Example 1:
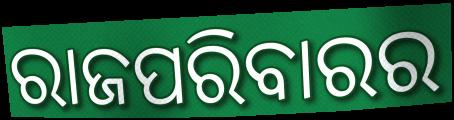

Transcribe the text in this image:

ରାଜପରିବାରର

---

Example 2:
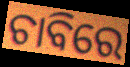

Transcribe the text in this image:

ଚାବିରେ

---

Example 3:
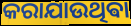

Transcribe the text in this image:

କରାଯାଉଥିଵା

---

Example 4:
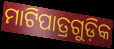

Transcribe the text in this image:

ମାଟିପାତ୍ରଗୁଡ଼ିକ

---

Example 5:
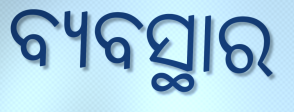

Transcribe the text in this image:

ବ୍ୟବସ୍ଥାର